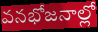
వనభోజనాల్లో